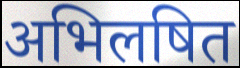
अभिलषित